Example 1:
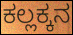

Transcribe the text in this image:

ಕಲ್ಲಕ್ಕನ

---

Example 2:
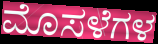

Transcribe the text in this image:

ಮೊಸಳೆಗಳ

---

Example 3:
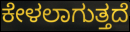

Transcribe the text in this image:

ಕೇಳಲಾಗುತ್ತದೆ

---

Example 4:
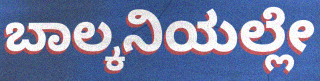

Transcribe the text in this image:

ಬಾಲ್ಕನಿಯಲ್ಲೇ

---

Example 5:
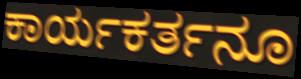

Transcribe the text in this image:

ಕಾರ್ಯಕರ್ತನೂ